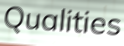
Qualities